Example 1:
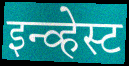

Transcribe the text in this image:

इन्व्हेस्ट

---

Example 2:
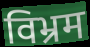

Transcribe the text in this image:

विभ्रम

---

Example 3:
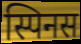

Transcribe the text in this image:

स्पिनस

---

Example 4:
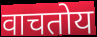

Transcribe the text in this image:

वाचतोय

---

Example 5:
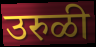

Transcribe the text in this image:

उरुळी